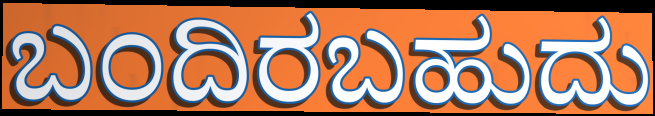
ಬಂದಿರಬಹುದು